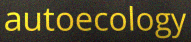
autoecology